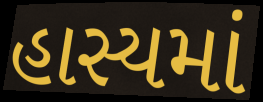
હાસ્યમાં